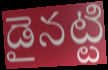
డైనట్టి